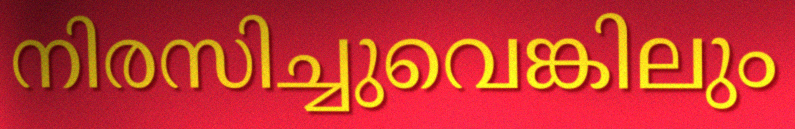
നിരസിച്ചുവെങ്കിലും